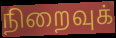
நிறைவுக்